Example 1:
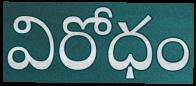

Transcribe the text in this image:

విరోధం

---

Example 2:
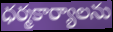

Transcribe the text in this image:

ధర్మకార్యాలను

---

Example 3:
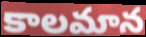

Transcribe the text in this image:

కాలమాన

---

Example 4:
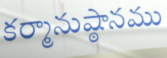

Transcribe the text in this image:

కర్మానుష్ఠానము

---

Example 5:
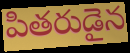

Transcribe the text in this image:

పితరుడైన